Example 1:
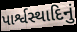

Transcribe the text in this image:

પાર્શ્વસ્થાદિનું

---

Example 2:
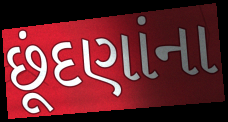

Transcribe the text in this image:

છૂંદણાંના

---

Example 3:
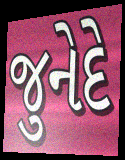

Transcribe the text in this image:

જુનેદે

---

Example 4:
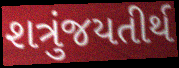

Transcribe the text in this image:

શત્રુંજયતીર્થ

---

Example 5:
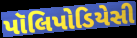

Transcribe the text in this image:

પૉલિપોડિયેસી